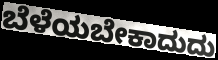
ಬೆಳೆಯಬೇಕಾದುದು